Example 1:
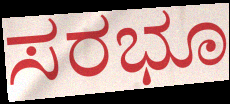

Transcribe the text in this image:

ಸರಭೂ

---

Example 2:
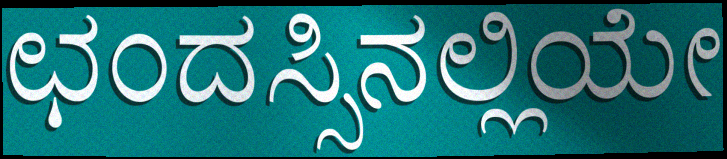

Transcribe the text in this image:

ಛಂದಸ್ಸಿನಲ್ಲಿಯೇ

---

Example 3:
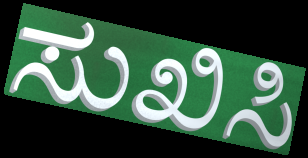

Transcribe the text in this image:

ಸುಖಿಸಿ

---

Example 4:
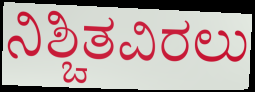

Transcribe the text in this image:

ನಿಶ್ಚಿತವಿರಲು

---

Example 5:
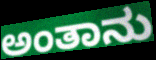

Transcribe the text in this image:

ಅಂತಾನು